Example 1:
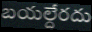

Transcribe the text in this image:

బయల్దేరదు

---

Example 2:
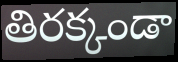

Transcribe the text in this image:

తిరక్కండా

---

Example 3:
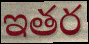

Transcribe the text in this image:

ఇతర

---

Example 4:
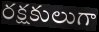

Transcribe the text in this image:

రక్షకులుగా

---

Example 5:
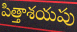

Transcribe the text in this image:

పిత్తాశయపు